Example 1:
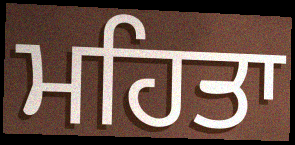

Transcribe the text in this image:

ਮਹਿਤਾ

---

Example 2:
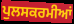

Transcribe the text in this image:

ਪੁਲਸਕਰਮੀਆਂ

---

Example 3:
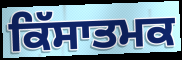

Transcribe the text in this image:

ਕਿੱਸਾਤਮਕ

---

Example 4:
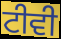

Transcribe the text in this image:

ਟੀਵੀ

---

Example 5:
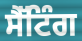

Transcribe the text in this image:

ਸੈੱਟਿੰਗ